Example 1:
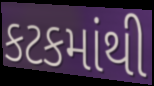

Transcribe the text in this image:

કટકમાંથી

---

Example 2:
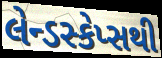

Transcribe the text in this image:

લેન્ડસ્કેપ્સથી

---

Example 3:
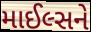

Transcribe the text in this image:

માઈલ્સને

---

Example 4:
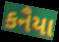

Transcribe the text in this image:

કનૈયા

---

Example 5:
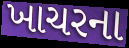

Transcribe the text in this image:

ખાચરના